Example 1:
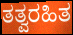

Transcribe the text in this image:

ತತ್ವರಹಿತ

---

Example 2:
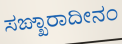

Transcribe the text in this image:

ಸಙ್ಖಾರಾದೀನಂ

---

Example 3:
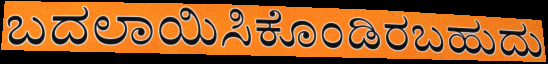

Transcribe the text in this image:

ಬದಲಾಯಿಸಿಕೊಂಡಿರಬಹುದು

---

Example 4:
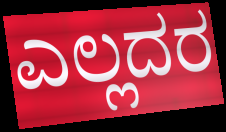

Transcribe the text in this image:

ಎಲ್ಲದರ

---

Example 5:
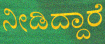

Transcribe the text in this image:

ನೀಡಿದ್ದಾರೆ